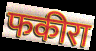
फकीरा